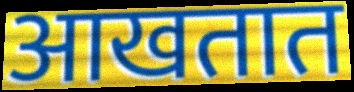
आखतात